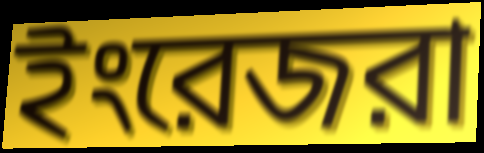
ইংরেজরা